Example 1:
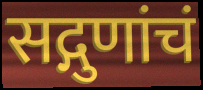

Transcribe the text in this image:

सद्गुणांचं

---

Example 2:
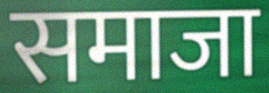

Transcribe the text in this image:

समाजा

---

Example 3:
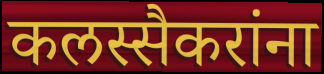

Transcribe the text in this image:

कलस्सैकरांना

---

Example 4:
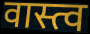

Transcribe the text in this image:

वास्त्व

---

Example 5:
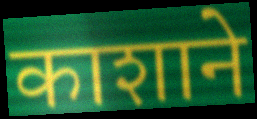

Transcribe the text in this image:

काशाने